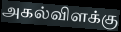
அகல்விளக்கு